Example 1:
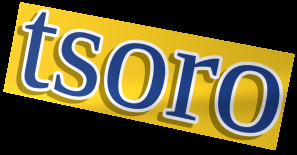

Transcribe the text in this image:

tsoro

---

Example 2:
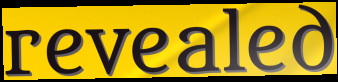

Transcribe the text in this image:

revealed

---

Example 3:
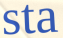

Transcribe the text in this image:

sta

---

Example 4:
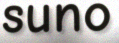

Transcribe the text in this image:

suno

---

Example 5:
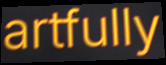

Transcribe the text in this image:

artfully